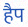
हैप